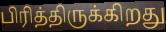
பிரித்திருக்கிறது